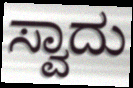
ಸ್ವಾದು